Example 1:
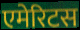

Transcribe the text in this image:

एमेरिटस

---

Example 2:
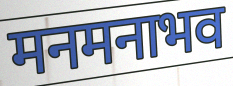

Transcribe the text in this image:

मनमनाभव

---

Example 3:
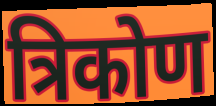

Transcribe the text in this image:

त्रिकोण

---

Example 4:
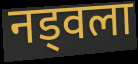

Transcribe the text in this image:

नड्वला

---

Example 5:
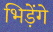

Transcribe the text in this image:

भिड़ेंगे